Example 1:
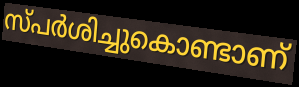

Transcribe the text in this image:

സ്പർശിച്ചുകൊണ്ടാണ്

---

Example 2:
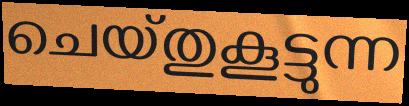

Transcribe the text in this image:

ചെയ്തുകൂട്ടുന്ന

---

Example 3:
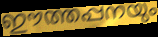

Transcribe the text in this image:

ഈത്തപ്പനയും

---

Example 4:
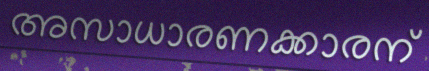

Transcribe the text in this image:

അസാധാരണക്കാരന്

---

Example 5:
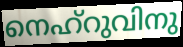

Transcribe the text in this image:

നെഹ്റുവിനു